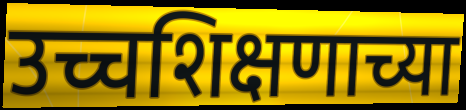
उच्चशिक्षणाच्या